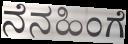
ನೆನಹಿಂಗೆ